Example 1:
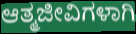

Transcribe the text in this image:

ಆತ್ಮಜೀವಿಗಳಾಗಿ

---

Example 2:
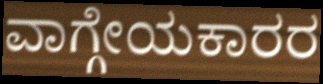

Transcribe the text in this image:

ವಾಗ್ಗೇಯಕಾರರ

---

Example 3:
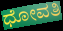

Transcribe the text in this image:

ಧೋವತಿ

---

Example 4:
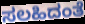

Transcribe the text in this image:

ಸಲಹಿದಂತೆ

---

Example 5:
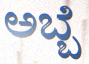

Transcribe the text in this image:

ಅಬ್ಬೆ